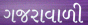
ગજરાવાળી